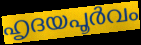
ഹൃദയപൂർവം